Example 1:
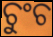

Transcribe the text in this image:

ଚୁଂଚ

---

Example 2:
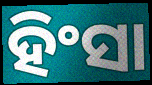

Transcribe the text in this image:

ହିଂସା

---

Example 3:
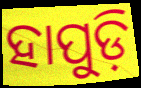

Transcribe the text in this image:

ହାପୁଡ଼ି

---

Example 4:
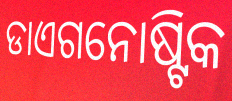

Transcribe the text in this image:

ଡାଏଗନୋଷ୍ଟିକ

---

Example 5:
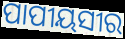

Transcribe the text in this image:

ପାପୀୟସୀର